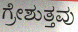
ಗ್ರೇಶುತ್ತವು